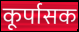
कूर्पासक